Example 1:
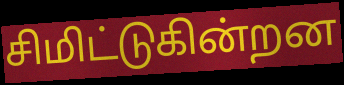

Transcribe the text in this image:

சிமிட்டுகின்றன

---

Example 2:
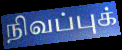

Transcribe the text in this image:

நிவப்புக்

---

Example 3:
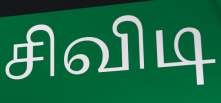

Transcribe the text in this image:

சிவிடி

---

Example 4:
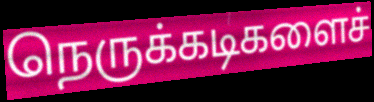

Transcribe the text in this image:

நெருக்கடிகளைச்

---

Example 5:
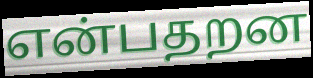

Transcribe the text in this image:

என்பதறன